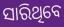
ସାରିଥିବେ